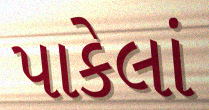
પાકેલાં